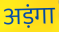
अड़ंगा